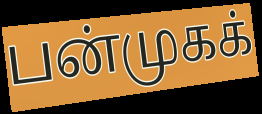
பன்முகக்